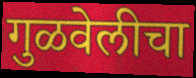
गुळवेलीचा